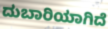
ದುಬಾರಿಯಾಗಿದೆ